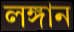
লঙ্গান